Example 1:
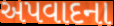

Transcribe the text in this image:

અપવાદના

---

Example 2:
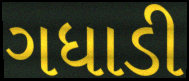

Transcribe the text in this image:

ગધાડી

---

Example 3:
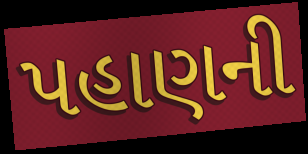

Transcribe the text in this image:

પહાણની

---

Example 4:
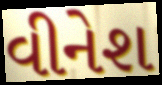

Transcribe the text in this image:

વીનેશ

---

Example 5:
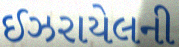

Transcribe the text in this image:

ઈઝરાયેલની